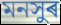
মনসুৰ